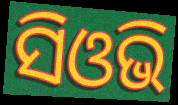
ସିଓଭି